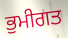
ਭੁਮੀਗਤ